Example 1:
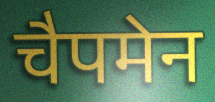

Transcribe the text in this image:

चैपमेन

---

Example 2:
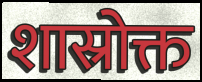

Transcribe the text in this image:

शास्रोक्त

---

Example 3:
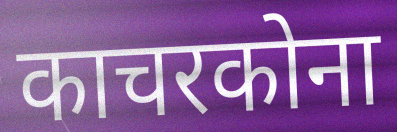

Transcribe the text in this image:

काचरकोना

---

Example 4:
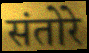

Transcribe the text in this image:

संतोरे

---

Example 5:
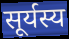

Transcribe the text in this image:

सूर्यस्य